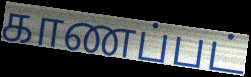
காணப்பட்